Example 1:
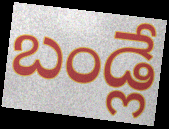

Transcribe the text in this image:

బండ్లే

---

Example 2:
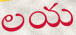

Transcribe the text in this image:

లయ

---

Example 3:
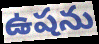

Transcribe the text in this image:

ఉషను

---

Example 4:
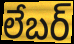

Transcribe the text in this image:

లేబర్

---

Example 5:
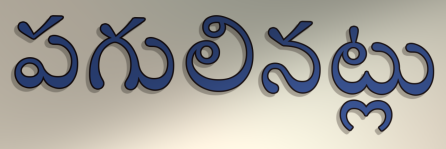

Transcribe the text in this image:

పగులినట్లు